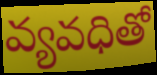
వ్యవధితో